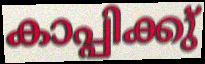
കാപ്പിക്കു്